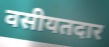
वसीयतदार